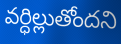
వర్ధిల్లుతోందని